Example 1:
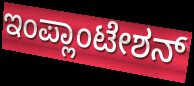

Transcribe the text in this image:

ಇಂಪ್ಲಾಂಟೇಶನ್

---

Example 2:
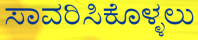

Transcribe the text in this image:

ಸಾವರಿಸಿಕೊಳ್ಳಲು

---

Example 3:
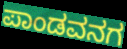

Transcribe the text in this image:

ಪಾಂಡವನಗ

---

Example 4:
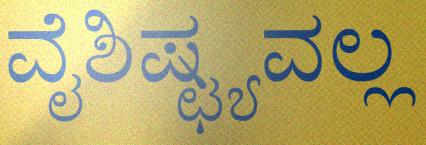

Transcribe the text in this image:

ವೈಶಿಷ್ಟ್ಯವಲ್ಲ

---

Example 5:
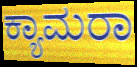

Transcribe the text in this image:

ಕ್ಯಾಮರಾ